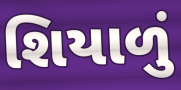
શિયાળું